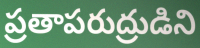
ప్రతాపరుద్రుడిని